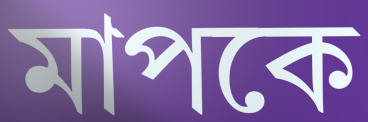
মাপকে